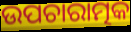
ଉପଚାରାତ୍ମକ